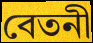
বেতনী